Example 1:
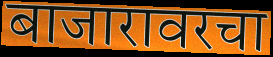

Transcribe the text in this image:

बाजारावरचा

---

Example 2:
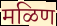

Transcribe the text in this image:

मळिण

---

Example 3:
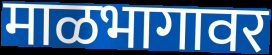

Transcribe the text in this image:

माळभागावर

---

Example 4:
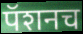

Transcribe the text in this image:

पॅशनच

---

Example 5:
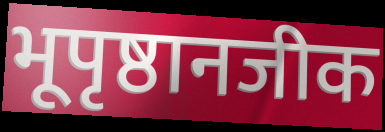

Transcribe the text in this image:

भूपृष्ठानजीक